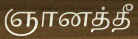
ஞானத்தீ